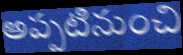
అప్పటినుంచి